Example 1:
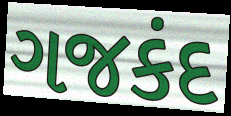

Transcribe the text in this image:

ગજકંદ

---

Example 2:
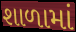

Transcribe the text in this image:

શાળામાં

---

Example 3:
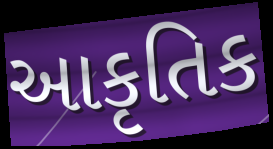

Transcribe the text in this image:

આકૃતિક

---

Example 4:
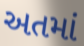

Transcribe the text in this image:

અતમાં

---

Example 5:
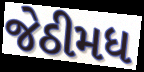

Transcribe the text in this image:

જેઠીમધ